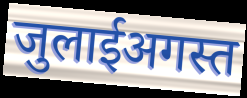
जुलाईअगस्त